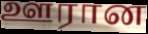
ஊரான